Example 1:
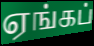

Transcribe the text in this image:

ஏங்கப்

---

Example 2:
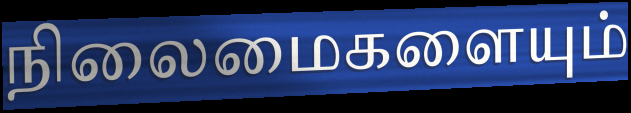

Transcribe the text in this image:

நிலைமைகளையும்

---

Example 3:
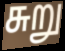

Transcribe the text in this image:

சுறு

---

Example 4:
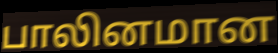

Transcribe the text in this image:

பாலினமான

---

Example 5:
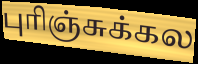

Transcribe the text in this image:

புரிஞ்சுக்கல